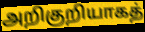
அறிகுறியாகத்